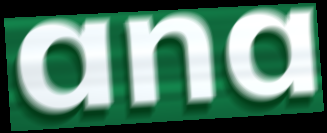
ana